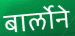
बार्लोने